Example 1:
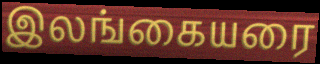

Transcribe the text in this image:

இலங்கையரை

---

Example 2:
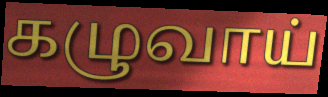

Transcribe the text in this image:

கழுவாய்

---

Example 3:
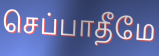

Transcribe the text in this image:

செப்பாதீமே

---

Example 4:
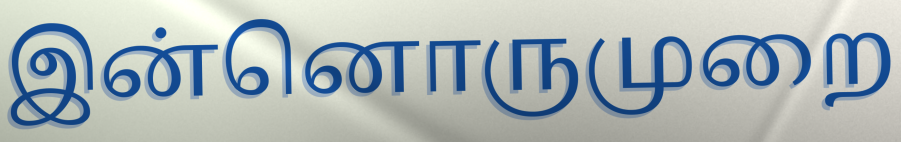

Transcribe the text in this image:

இன்னொருமுறை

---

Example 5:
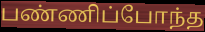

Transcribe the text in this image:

பண்ணிப்போந்த